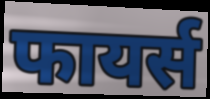
फायर्स